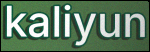
kaliyun